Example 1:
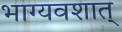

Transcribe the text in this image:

भाग्यवशात्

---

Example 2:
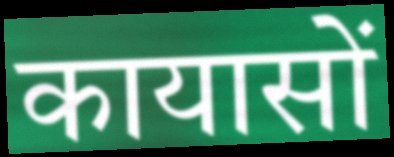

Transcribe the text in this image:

कायासों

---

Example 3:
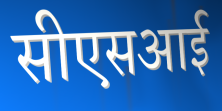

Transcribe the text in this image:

सीएसआई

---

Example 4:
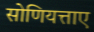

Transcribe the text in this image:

सोणियत्ताए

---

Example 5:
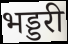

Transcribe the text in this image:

भड्डरी